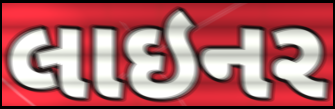
લાઇનર